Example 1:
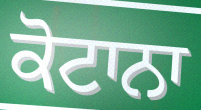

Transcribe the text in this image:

ਕੋਟਾਨਾ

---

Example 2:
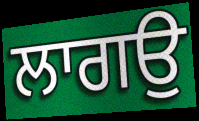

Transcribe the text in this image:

ਲਾਗਉ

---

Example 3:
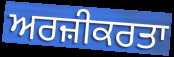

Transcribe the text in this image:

ਅਰਜ਼ੀਕਰਤਾ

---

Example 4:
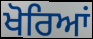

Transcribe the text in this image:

ਖੋਰਿਆਂ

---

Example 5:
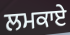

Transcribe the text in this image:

ਲਮਕਾਏ